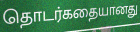
தொடர்கதையானது